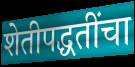
शेतीपद्धतींचा